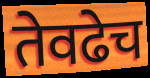
तेवढेच